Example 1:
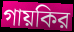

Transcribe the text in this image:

গায়কির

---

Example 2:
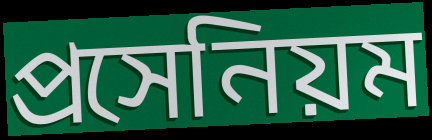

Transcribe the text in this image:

প্রসেনিয়ম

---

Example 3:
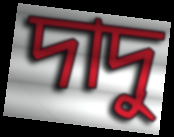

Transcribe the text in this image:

দাদু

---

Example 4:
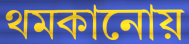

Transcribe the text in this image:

থমকানোয়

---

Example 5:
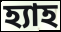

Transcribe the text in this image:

হ্যাহ